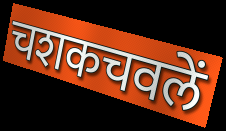
चशकचवलें